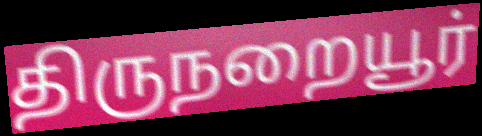
திருநறையூர்